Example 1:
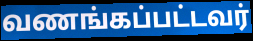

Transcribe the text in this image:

வணங்கப்பட்டவர்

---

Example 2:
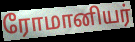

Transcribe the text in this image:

ரோமானியர்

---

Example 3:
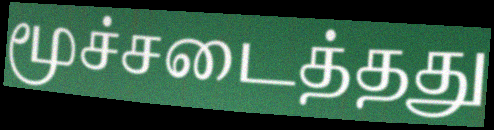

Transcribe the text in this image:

மூச்சடைத்தது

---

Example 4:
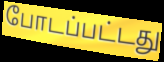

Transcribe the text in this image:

போடப்பட்டது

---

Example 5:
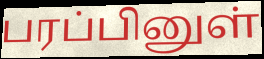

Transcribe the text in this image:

பரப்பினுள்